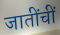
जातींचीं